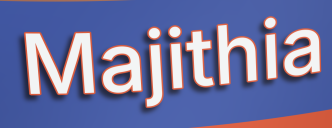
Majithia